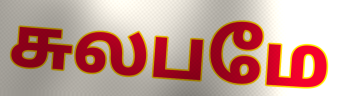
சுலபமே